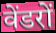
वेंडरों